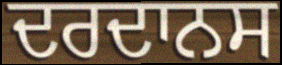
ਦਰਦਾਨਸ